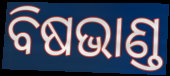
ବିଷଭାଣ୍ଡ